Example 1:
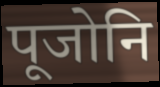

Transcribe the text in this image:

पूजोनि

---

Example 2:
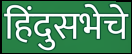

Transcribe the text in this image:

हिंदुसभेचे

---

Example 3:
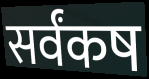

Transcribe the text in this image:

सर्वंकष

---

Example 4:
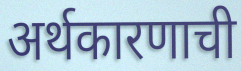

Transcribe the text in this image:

अर्थकारणाची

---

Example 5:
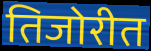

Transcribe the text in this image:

तिजोरीत